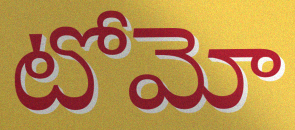
టోమో